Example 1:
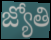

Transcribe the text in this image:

జ్యోతి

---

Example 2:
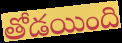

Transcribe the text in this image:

తోడయింది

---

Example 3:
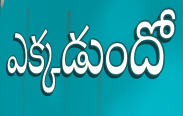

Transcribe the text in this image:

ఎక్కడుందో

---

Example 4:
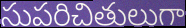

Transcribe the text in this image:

సుపరిచితులుగా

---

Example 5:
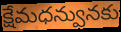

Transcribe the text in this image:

క్షేమధన్వునకు